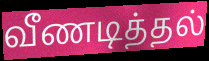
வீணடித்தல்